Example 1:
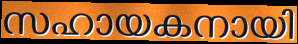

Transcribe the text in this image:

സഹായകനായി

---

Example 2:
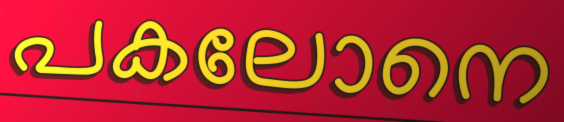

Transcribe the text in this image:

പകലോനെ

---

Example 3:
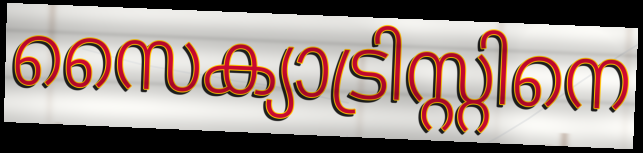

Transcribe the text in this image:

സൈക്യാട്രിസ്റ്റിനെ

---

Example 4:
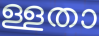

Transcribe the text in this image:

ള്ളതാ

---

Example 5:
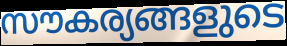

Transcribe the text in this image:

സൗകര്യങ്ങളുടെ